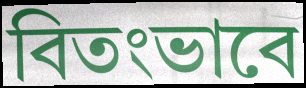
বিতংভাবে